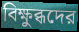
বিক্ষুব্ধদের